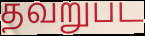
தவறுபட